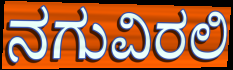
ನಗುವಿರಲಿ